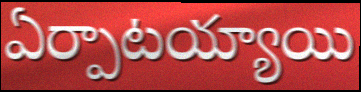
ఏర్పాటయ్యాయి